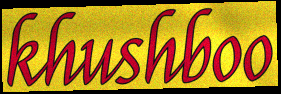
khushboo